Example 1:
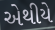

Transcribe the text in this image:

એથીયે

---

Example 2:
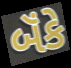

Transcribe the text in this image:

બૅંકે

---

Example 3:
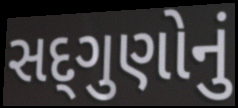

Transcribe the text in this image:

સદ્‌ગુણોનું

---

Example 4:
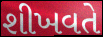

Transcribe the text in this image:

શીખવતે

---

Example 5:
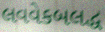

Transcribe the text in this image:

લવવેકબલદ્ધ